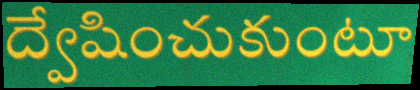
ద్వేషించుకుంటూ